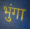
भुंगा